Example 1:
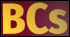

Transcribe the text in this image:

BCs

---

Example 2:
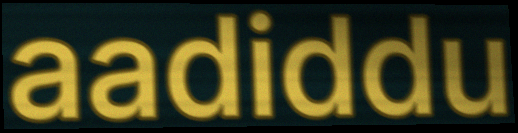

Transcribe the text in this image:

aadiddu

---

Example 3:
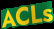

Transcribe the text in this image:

ACLs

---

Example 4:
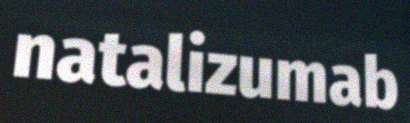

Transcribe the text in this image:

natalizumab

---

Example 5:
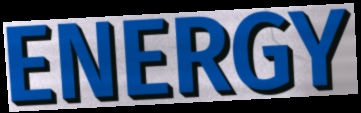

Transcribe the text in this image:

ENERGY